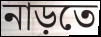
নাড়তে